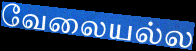
வேலையல்ல